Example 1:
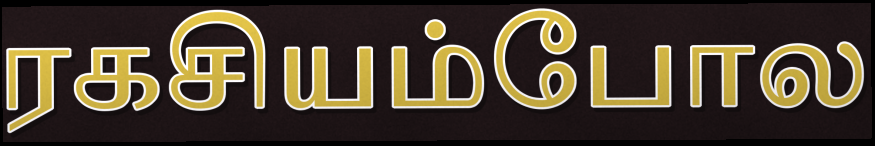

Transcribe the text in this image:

ரகசியம்போல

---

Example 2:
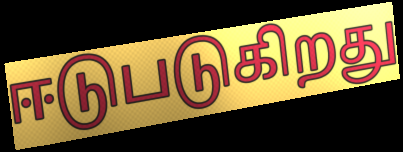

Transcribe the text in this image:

ஈடுபடுகிறது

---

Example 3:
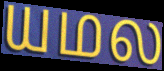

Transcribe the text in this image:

யமல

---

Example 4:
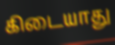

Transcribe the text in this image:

கிடையாது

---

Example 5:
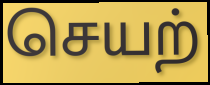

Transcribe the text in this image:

செயற்